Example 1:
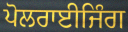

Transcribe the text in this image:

ਪੋਲਰਾਈਜਿੰਗ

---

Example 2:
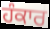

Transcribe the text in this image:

ਹੰਕਾਰ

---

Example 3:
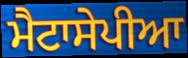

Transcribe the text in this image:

ਮੈਟਾਸੇਪੀਆ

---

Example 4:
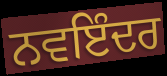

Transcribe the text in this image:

ਨਵਇੰਦਰ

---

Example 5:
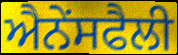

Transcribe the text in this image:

ਐਨੇਂਸਫੈਲੀ